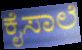
ಕೈಸಾಲೆ